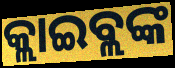
କ୍ଲାଇବ୍ଲଙ୍କ